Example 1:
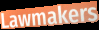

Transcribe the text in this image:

Lawmakers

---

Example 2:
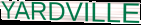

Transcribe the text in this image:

YARDVILLE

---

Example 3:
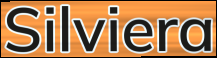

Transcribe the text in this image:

Silviera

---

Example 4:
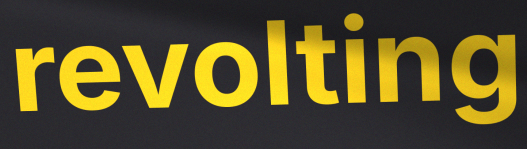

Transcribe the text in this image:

revolting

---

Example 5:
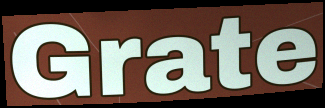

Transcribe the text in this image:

Grate